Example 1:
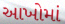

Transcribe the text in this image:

આખોમાં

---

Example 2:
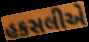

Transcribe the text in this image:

હકસલીએ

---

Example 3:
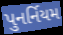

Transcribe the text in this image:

પુનર્નિયમ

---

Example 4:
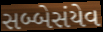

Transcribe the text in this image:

સબ્બેસંયેવ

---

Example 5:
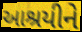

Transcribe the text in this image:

આશ્રયીને